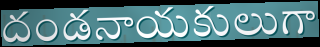
దండనాయకులుగా